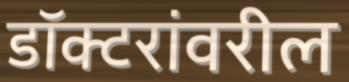
डॉक्टरांवरील